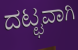
ದಟ್ಟವಾಗಿ